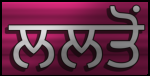
ਲਲਤੋਂ